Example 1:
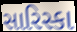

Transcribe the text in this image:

સારિસ્કા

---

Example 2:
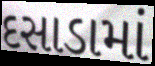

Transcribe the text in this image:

દસાડામાં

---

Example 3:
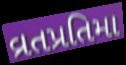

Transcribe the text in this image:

વ્રતપ્રતિમા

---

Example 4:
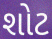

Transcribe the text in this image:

શોટ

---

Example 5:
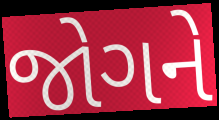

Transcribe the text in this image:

જોગને